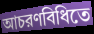
আচরণবিধিতে